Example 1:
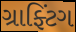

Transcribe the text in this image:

ગ્રાફ્ટિંગ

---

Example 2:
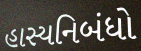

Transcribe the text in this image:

હાસ્યનિબંધો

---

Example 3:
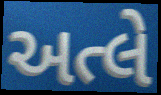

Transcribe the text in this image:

અત્લે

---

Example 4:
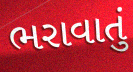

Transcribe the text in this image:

ભરાવાતું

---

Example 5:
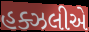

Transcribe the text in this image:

હક્ઝલીએ